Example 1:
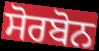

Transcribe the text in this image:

ਸੋਰਬੋਨ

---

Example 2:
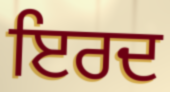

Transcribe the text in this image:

ਇਰਦ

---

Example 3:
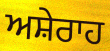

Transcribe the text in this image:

ਅਸ਼ੇਰਾਹ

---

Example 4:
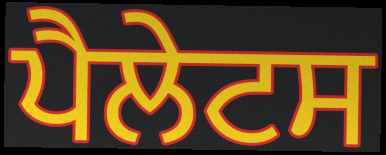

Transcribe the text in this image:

ਪੈਲੇਟਸ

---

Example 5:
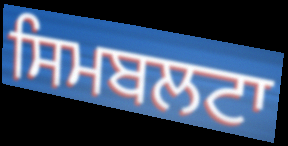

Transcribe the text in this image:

ਸਿਮਬਲਟਾ